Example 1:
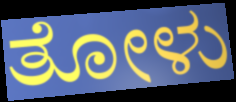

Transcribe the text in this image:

ತೋಳು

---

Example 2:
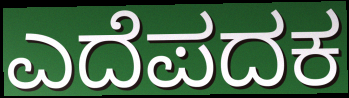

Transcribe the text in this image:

ಎದೆಪದಕ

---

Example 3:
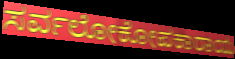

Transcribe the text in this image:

ಸರ್ವಲೋಕೋಪಕಾರಾಯ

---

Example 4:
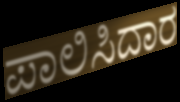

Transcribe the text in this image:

ಪಾಲಿಸಿದಾರ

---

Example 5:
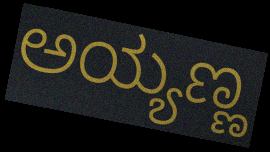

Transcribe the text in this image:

ಅಯ್ಯಣ್ಣ